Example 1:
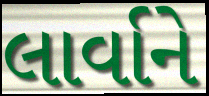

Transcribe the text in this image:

લાર્વાને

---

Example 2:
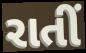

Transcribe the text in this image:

રાતીં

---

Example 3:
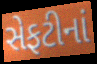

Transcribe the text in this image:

સેફટીનાં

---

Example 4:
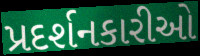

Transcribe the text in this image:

પ્રદર્શનકારીઓ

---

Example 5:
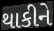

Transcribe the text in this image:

થાકીને